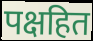
पक्षहित